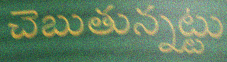
చెబుతున్నట్టు